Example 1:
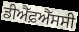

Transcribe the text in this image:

ਡੀਐੱਫ਼ਐੱਸਸੀ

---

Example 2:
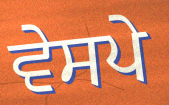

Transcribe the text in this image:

ਵੇਸਪੇ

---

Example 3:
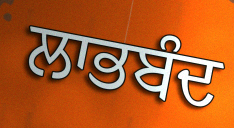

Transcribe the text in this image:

ਲਾਭਬੰਦ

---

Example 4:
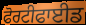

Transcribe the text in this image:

ਫੋਰਟੀਫਾਈਡ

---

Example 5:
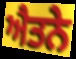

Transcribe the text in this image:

ਐਤਨੇ